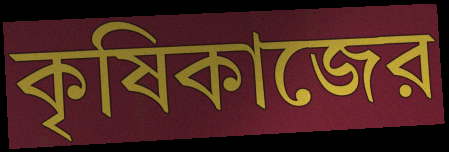
কৃষিকাজের